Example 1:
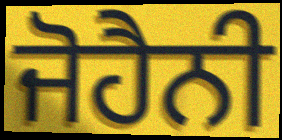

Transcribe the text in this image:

ਜੋਹੈਨੀ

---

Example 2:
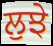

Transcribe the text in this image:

ਲੁਝੇ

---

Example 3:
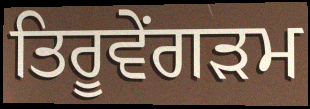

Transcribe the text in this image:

ਤਿਰੂਵੇਂਗੜਮ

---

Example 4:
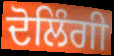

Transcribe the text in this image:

ਦੋਲਿੰਗੀ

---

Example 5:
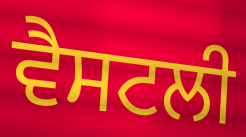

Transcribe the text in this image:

ਵੈਸਟਲੀ